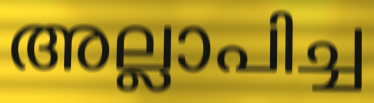
അല്ലാപിച്ച